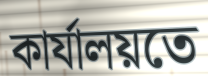
কাৰ্যালয়তে